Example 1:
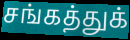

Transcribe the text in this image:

சங்கத்துக்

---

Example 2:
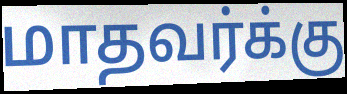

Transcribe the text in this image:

மாதவர்க்கு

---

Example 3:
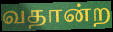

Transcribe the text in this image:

வதான்ற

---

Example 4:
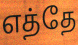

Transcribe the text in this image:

எத்தே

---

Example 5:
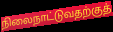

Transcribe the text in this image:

நிலைநாட்டுவதற்குத்